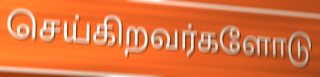
செய்கிறவர்களோடு